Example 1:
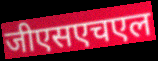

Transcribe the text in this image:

जीएसएचएल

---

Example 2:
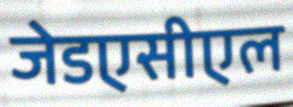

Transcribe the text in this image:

जेडएसीएल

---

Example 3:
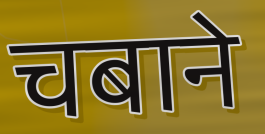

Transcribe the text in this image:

चबाने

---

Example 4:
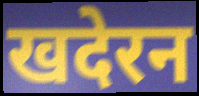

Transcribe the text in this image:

खदेरन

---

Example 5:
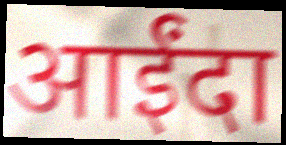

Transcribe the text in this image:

आईंदा